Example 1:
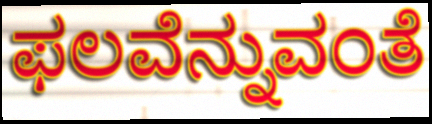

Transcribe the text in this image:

ಫಲವೆನ್ನುವಂತೆ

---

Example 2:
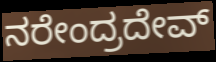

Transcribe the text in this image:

ನರೇಂದ್ರದೇವ್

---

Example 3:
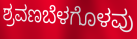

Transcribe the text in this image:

ಶ್ರವಣಬೆಳಗೊಳವು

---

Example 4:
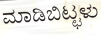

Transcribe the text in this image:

ಮಾಡಿಬಿಟ್ಟಳು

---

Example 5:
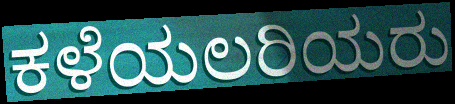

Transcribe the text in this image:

ಕಳೆಯಲರಿಯರು